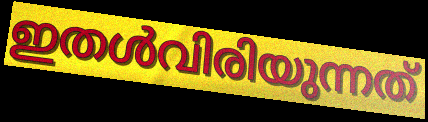
ഇതൾവിരിയുന്നത്